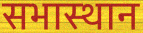
सभास्थान